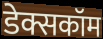
डेक्सकॉम